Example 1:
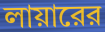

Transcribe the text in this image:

লায়ারের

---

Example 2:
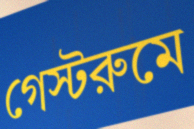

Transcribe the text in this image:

গেস্টরুমে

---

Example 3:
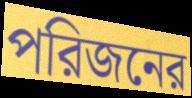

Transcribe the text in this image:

পরিজনের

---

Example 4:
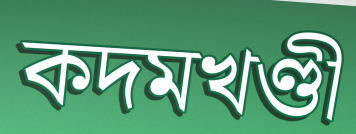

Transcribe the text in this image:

কদমখণ্ডী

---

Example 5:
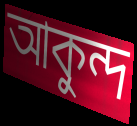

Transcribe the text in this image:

আকুন্দ